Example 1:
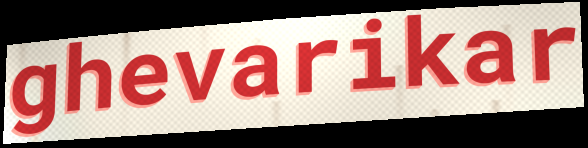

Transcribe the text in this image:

ghevarikar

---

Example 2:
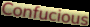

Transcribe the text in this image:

Confucious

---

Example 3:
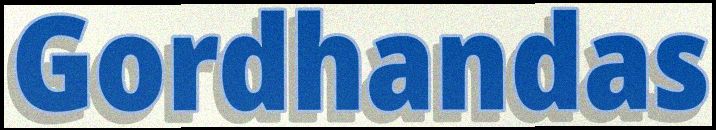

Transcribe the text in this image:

Gordhandas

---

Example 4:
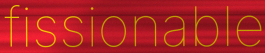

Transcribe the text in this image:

fissionable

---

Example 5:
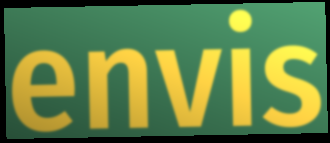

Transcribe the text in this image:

envis